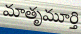
మాతృమూర్తి